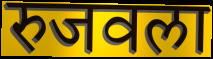
रुजवला